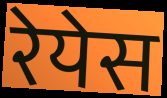
रेयेस